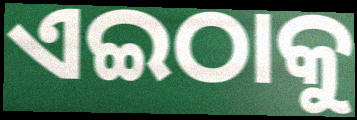
ଏଇଠାକୁ